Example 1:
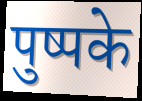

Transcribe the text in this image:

पुष्पके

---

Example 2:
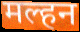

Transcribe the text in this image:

मल्हन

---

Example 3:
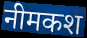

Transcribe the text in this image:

नीमकश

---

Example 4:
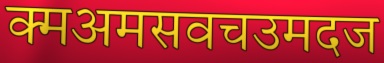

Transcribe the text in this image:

क्मअमसवचउमदज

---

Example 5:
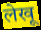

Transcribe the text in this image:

लेखू